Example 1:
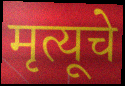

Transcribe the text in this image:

मृत्यूचे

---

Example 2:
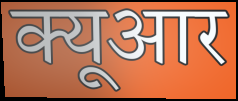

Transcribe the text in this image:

क्यूआर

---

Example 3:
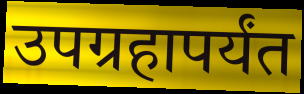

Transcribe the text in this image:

उपग्रहापर्यंत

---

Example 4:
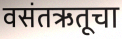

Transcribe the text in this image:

वसंतऋतूचा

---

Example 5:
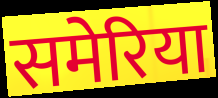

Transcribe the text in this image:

समेरिया